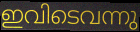
ഇവിടെവന്നു